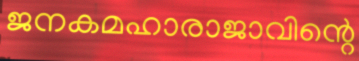
ജനകമഹാരാജാവിന്റെ